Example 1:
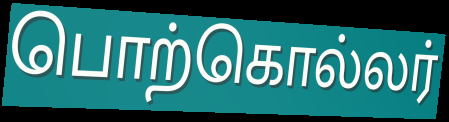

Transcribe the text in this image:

பொற்கொல்லர்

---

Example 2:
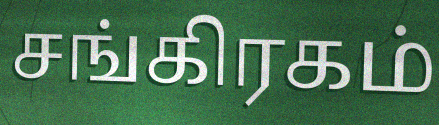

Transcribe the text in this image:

சங்கிரகம்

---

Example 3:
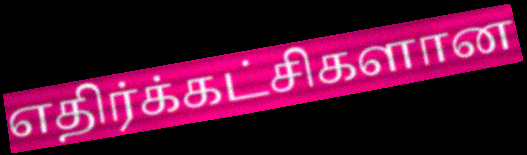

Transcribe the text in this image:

எதிர்க்கட்சிகளான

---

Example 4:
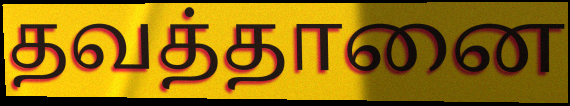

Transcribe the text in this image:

தவத்தானை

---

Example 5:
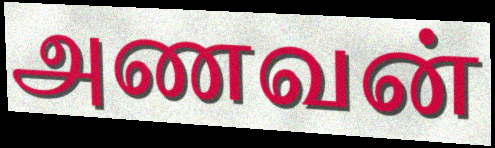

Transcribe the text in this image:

அணவன்